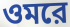
ওমরে